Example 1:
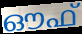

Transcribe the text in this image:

ഔഫ്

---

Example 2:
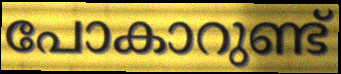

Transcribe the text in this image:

പോകാറുണ്ട്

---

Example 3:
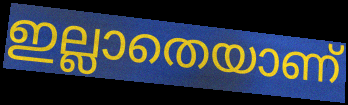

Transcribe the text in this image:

ഇല്ലാതെയാണ്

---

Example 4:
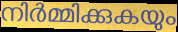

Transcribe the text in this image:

നിർമ്മിക്കുകയും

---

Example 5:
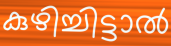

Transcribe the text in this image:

കുഴിച്ചിട്ടാൽ